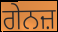
ਗੇਨਜ਼